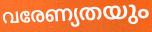
വരേണ്യതയും